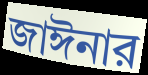
জাঈনার